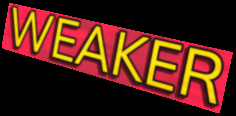
WEAKER